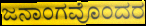
ಜನಾಂಗವೊಂದರ